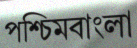
পশ্চিমবাংলা